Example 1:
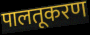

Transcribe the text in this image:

पालतूकरण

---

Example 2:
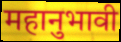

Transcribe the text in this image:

महानुभावी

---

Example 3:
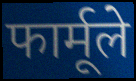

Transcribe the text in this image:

फार्मूले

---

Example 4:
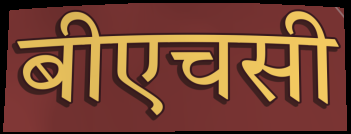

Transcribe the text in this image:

बीएचसी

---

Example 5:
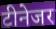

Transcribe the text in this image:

टीनेजर